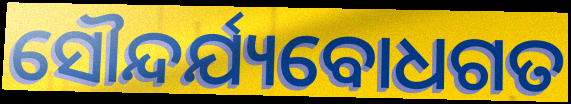
ସୌନ୍ଦର୍ଯ୍ୟବୋଧଗତ